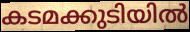
കടമക്കുടിയിൽ